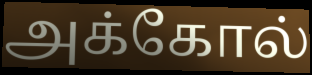
அக்கோல்